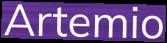
Artemio